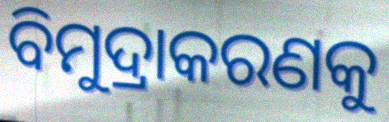
ବିମୁଦ୍ରାକରଣକୁ